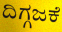
ದಿಗ್ಗಜಕೆ